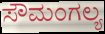
ಸೌಮಂಗಲ್ಯ